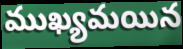
ముఖ్యమయిన